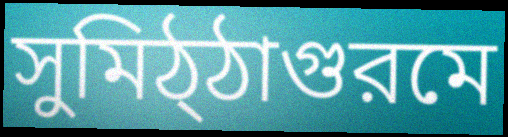
সুমিঠ্ঠাগুরমে